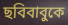
ছবিবাবুকে